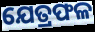
ଯେତ୍ରଫଳ